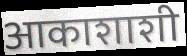
आकाशाशी